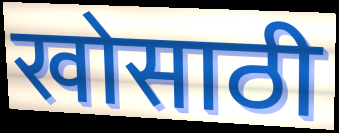
खोसाठी